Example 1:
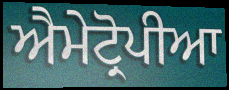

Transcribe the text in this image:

ਐਮੇਟ੍ਰੋਪੀਆ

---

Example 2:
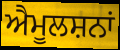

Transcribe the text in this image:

ਐਮੂਲਸ਼ਨਾਂ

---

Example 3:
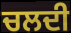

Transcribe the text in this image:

ਚਲਦੀ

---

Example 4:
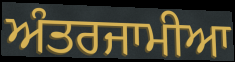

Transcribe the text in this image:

ਅੰਤਰਜਾਮੀਆ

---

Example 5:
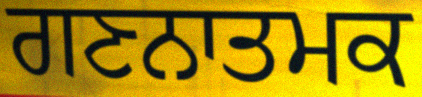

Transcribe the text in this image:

ਗਣਨਾਤਮਕ